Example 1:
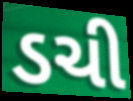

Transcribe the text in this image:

ડચી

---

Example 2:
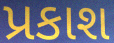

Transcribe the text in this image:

પ્રકાશ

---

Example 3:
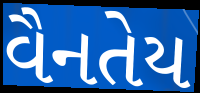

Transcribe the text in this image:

વૈનતેય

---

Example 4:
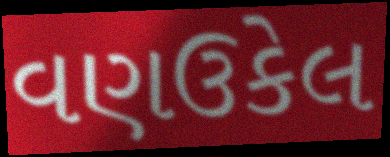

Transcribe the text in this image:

વણઉકેલ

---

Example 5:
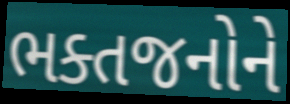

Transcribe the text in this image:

ભક્તજનોને